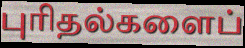
புரிதல்களைப்